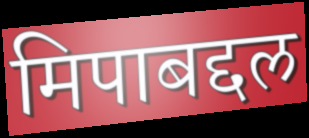
मिपाबद्दल